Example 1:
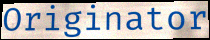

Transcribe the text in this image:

Originator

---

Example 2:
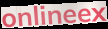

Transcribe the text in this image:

onlineex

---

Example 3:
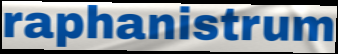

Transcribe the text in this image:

raphanistrum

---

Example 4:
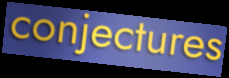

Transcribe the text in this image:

conjectures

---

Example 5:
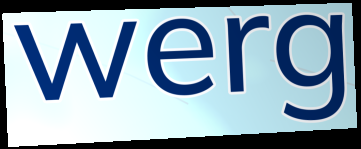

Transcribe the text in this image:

werg